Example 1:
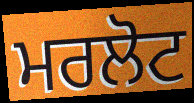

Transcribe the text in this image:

ਮਰਲੋਟ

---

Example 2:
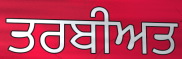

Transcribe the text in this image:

ਤਰਬੀਅਤ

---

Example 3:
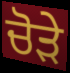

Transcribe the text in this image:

ਚੋੜੇ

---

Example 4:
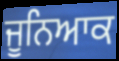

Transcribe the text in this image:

ਜੂਨਿਆਕ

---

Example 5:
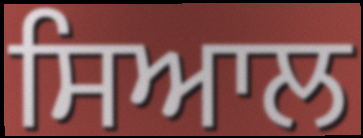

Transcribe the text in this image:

ਸਿਆਲ